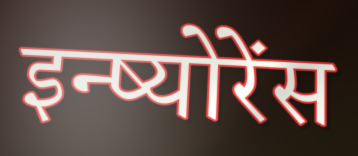
इन्ष्योरेंस